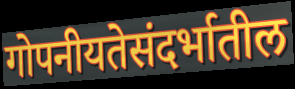
गोपनीयतेसंदर्भातील